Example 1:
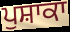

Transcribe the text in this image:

ਪੁਸ਼ਾਕਾ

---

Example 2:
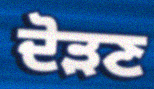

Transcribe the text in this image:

ਦੋੜਣ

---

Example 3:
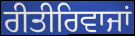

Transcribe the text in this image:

ਰੀਤੀਰਿਵਾਜਾਂ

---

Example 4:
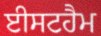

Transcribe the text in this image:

ਈਸਟਹੈਮ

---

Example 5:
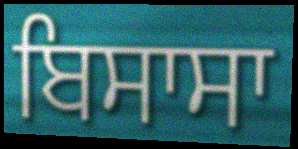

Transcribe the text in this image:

ਬਿਸਾਸਾ